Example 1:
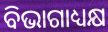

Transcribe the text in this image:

ବିଭାଗାଧ୍ୟକ୍ଷ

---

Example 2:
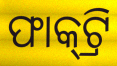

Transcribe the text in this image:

ଫାକ୍‍ଟ୍ରି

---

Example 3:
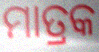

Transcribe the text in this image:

ମାତ୍ରକ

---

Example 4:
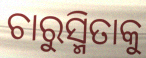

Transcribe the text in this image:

ଚାରୁସ୍ମିତାକୁ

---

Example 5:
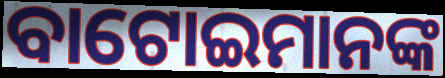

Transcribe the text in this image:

ବାଟୋଇମାନଙ୍କ